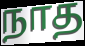
நாத